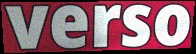
verso